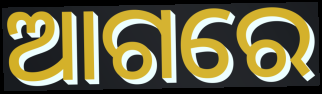
ଆଗରେ